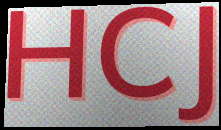
HCJ